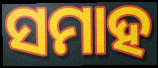
ସମାହ